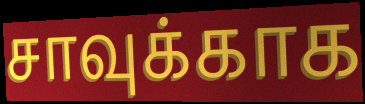
சாவுக்காக